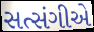
સત્સંગીએ